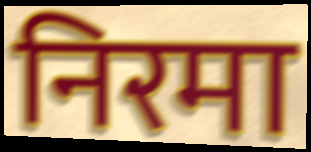
निरमा